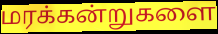
மரக்கன்றுகளை